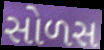
સોળસ